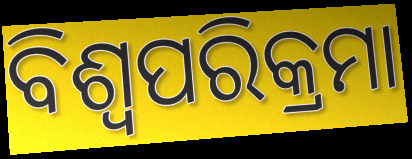
ବିଶ୍ୱପରିକ୍ରମା